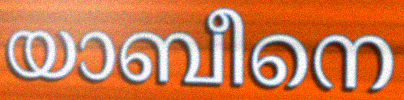
യാബീനെ